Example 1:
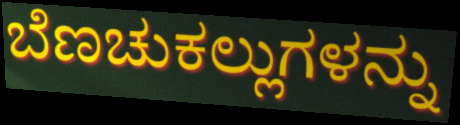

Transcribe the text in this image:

ಬೆಣಚುಕಲ್ಲುಗಳನ್ನು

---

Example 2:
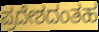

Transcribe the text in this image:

ಪ್ರದೇಶದಂತಹ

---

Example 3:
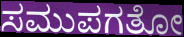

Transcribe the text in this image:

ಸಮುಪಗತೋ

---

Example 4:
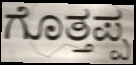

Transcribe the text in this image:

ಗೊತ್ತಪ್ಪ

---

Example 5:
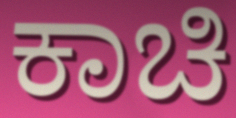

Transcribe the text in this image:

ಕಾಚಿ